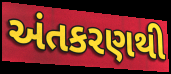
અંતકરણથી